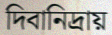
দিবানিদ্রায়